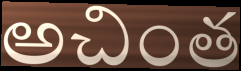
అచింత